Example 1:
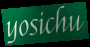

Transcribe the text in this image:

yosichu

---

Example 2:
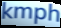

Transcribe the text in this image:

kmph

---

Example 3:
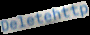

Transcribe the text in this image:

Deletehttp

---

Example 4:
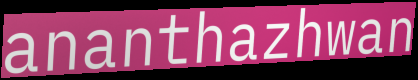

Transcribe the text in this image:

ananthazhwan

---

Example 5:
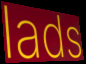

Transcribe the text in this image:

lads